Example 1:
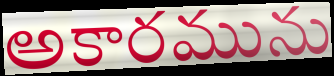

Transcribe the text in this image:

అకారమును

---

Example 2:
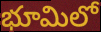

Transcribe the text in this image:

భూమిలో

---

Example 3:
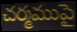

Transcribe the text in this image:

చర్మముపై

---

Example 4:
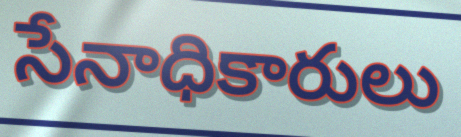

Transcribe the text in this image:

సేనాధికారులు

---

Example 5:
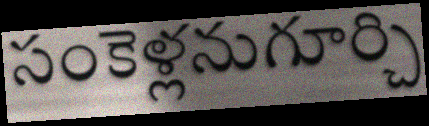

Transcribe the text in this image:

సంకెళ్లనుగూర్చి